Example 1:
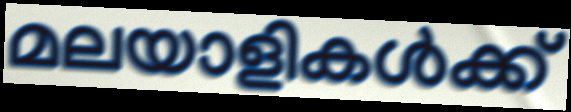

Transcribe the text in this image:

മലയാളികൾക്ക്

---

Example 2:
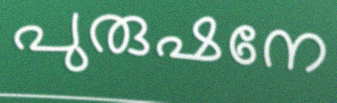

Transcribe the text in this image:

പുരുഷനേ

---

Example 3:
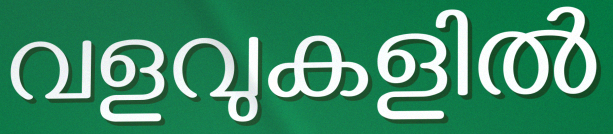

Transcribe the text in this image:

വളവുകളിൽ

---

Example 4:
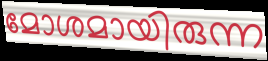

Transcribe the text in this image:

മോശമായിരുന്ന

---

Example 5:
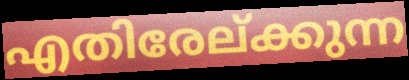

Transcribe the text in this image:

എതിരേല്ക്കുന്ന